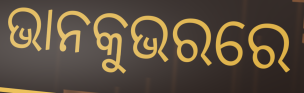
ଭାନକୁଭରରେ